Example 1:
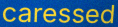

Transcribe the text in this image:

caressed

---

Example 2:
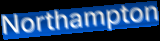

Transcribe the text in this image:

Northampton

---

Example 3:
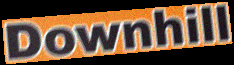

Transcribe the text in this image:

Downhill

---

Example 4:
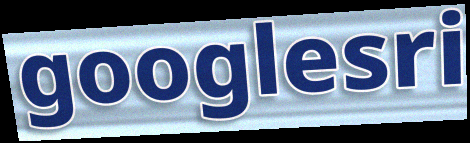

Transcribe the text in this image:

googlesri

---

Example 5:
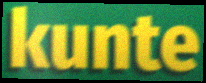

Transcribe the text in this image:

kunte